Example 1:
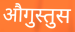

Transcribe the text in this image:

औगुस्तुस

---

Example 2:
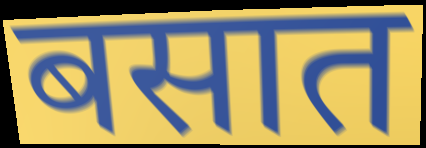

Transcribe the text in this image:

बसात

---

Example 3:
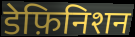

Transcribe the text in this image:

डेफ़िनिशन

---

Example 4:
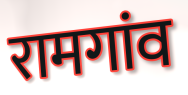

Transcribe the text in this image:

रामगांव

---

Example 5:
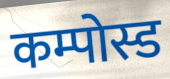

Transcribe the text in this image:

कम्पोस्ड